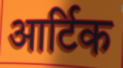
आर्टिक